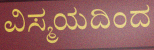
ವಿಸ್ಮಯದಿಂದ